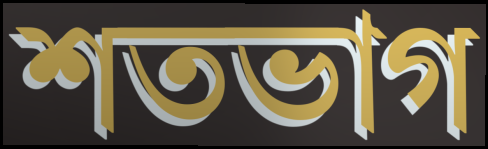
শতভাগ